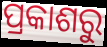
ପ୍ରକାଶରୁ